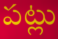
పట్లు